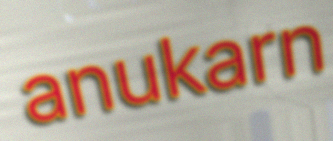
anukarn